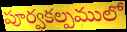
పూర్వకల్పములో